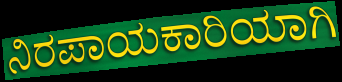
ನಿರಪಾಯಕಾರಿಯಾಗಿ